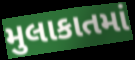
મુલાકાતમાં